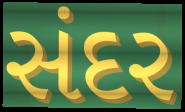
સંદર